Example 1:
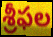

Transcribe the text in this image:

శ్రీఫల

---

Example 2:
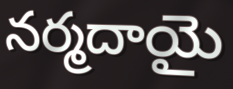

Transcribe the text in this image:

నర్మదాయై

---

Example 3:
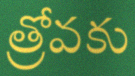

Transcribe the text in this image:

త్రోవకు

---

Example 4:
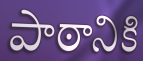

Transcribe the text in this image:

పాఠానికి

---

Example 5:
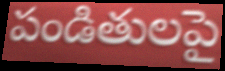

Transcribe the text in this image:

పండితులపై